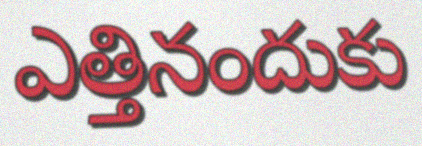
ఎత్తినందుకు